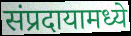
संप्रदायामध्ये